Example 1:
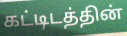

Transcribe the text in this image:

கட்டிடத்தின்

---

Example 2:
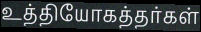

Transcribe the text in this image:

உத்தியோகத்தர்கள்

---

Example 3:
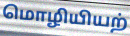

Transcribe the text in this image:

மொழியியற்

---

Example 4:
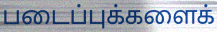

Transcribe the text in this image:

படைப்புக்களைக்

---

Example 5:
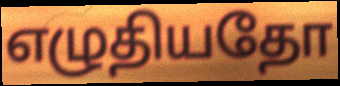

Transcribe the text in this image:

எழுதியதோ